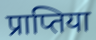
प्राप्तिया